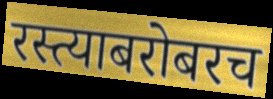
रस्त्याबरोबरच